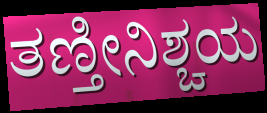
ತಣ್ತೀನಿಶ್ಚಯ